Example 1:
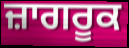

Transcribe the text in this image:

ਜ਼ਾਗਰੂਕ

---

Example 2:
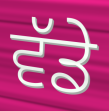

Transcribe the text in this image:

ਵੱਡੇ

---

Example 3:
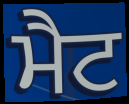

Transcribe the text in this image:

ਮੈਟ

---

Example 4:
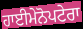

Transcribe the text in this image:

ਹਾਈਮੇਨੋਪਟੇਰਾ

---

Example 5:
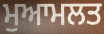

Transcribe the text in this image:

ਮੁਆਮਲਤ